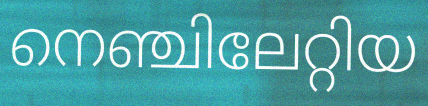
നെഞ്ചിലേറ്റിയ